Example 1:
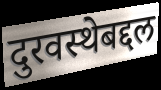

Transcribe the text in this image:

दुरवस्थेबद्दल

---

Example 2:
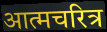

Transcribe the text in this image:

आत्मचरित्र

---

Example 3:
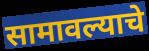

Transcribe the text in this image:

सामावल्याचे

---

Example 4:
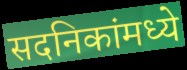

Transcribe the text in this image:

सदनिकांमध्ये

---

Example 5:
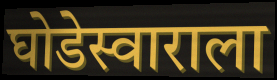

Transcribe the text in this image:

घोडेस्वाराला